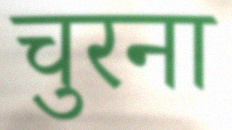
चुरना